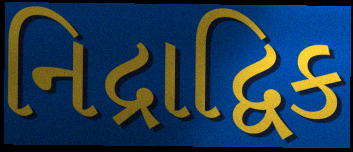
નિદ્રાદ્વિક